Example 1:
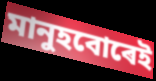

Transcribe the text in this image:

মানুহবোৰেই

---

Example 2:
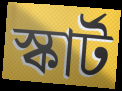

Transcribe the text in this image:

স্কাৰ্ট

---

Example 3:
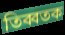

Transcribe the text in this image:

তিব্বতক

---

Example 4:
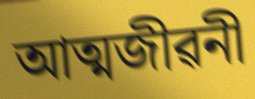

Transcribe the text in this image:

আত্মজীৱনী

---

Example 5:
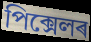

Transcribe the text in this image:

পিক্সেলৰ